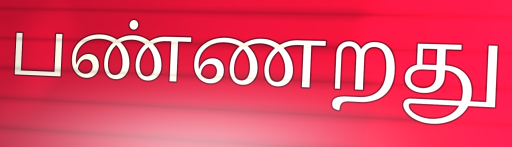
பண்ணறது